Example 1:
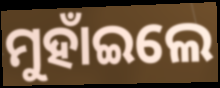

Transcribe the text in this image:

ମୁହାଁଇଲେ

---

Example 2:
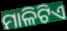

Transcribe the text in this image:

ମାଳିଟିଏ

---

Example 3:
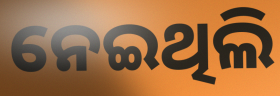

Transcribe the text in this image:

ନେଇଥିଲି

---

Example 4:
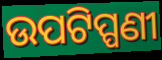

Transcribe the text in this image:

ଉପଟିପ୍ପଣୀ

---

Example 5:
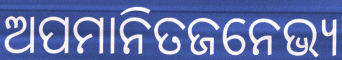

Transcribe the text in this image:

ଅପମାନିତଜନେଭ୍ୟ